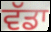
ਵੱਡਾ